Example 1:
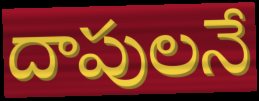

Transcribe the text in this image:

దాపులనే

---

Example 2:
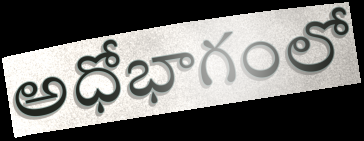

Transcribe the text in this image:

అధోభాగంలో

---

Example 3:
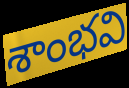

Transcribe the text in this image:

శాంభవి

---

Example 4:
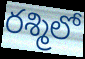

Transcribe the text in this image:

రశ్మిలో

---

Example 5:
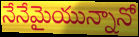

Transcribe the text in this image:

నేనేమైయున్నానో